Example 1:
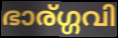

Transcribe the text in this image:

ഭാര്ഗ്ഗവി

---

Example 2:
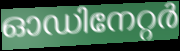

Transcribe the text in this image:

ഓഡിനേറ്റർ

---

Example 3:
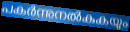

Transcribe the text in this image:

പകർന്നുനൽകുകയും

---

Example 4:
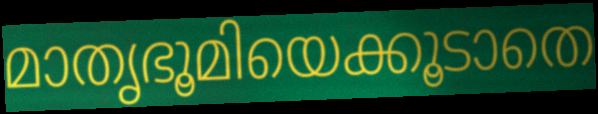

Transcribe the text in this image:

മാതൃഭൂമിയെക്കൂടാതെ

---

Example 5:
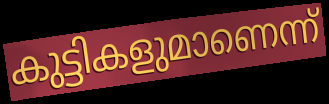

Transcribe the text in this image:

കുട്ടികളുമാണെന്ന്